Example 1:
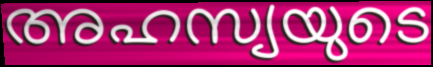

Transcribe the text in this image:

അഹസ്യയുടെ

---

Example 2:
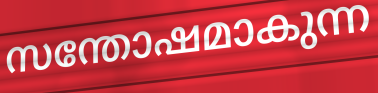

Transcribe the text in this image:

സന്തോഷമാകുന്ന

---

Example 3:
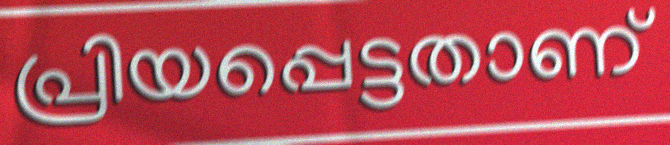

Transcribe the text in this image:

പ്രിയപ്പെട്ടതാണ്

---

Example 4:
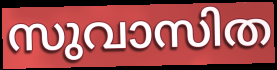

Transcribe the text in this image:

സുവാസിത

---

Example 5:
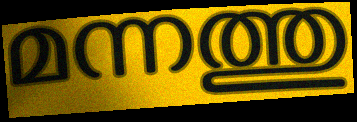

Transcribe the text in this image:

മന്നത്തു